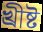
খ্রীষ্ট